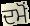
ਦਮੋਂ